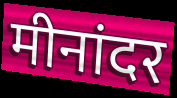
मीनांदर